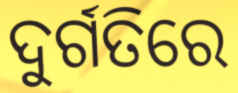
ଦୁର୍ଗତିରେ